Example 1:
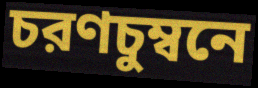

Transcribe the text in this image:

চরণচুম্বনে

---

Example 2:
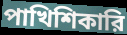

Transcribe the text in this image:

পাখিশিকারি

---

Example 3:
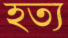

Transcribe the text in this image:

হত্য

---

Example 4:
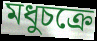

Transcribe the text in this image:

মধুচক্রে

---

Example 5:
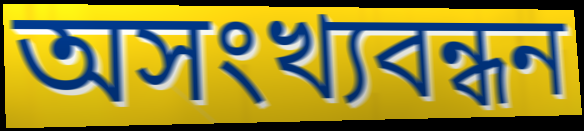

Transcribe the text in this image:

অসংখ্যবন্ধন